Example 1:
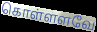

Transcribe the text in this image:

கொள்ளளவே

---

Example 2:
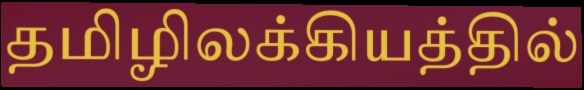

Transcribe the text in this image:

தமிழிலக்கியத்தில்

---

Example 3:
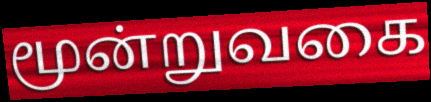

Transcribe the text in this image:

மூன்றுவகை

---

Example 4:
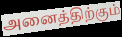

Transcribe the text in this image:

அனைத்திற்கும்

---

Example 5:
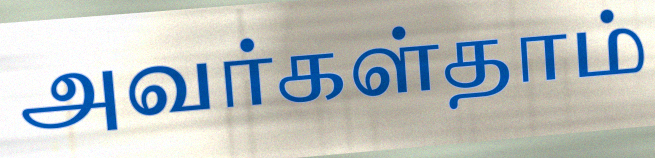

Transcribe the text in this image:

அவர்கள்தாம்